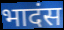
भादंस